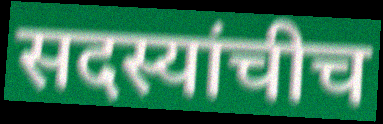
सदस्यांचीच